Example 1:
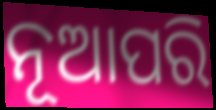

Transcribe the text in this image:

ନୂଆପରି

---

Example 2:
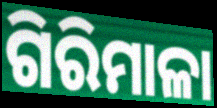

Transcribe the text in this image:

ଗିରିମାଳା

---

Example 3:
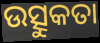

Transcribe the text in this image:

ଉତ୍ସୁକତା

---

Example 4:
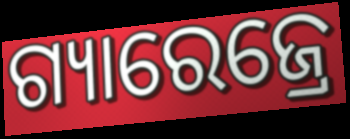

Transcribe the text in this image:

ଗ୍ୟାରେଜ୍ରେ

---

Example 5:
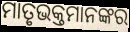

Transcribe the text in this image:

ମାତୃଭକ୍ତମାନଙ୍କର